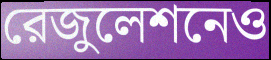
রেজুলেশনেও